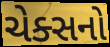
ચેક્સનો